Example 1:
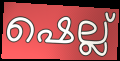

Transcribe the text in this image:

ഷെല്ല്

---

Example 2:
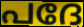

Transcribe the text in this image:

പദേ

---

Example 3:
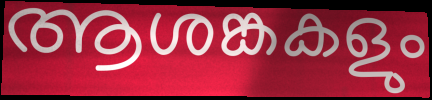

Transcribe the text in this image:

ആശങ്കകളും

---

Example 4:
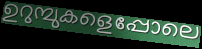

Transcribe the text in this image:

ഉറുമ്പുകളെപ്പോലെ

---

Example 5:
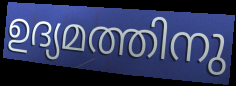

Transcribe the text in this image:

ഉദ്യമത്തിനു